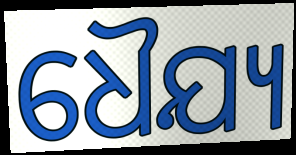
ଧୈଯ୍ୟ